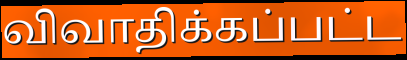
விவாதிக்கப்பட்ட